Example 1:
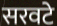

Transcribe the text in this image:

सरवटे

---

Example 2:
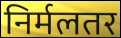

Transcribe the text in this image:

निर्मलतर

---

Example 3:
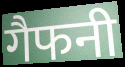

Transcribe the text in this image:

गैफनी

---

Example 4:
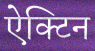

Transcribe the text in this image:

ऐक्टिन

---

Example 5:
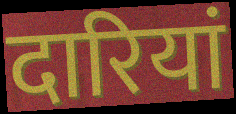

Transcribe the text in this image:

दारियां